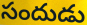
సందుడు